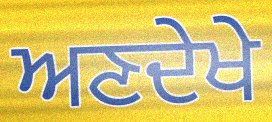
ਅਣਦੇਖੇ